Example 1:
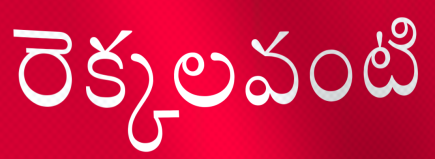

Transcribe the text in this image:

రెక్కలవంటి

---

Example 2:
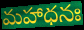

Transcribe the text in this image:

మహాధనః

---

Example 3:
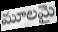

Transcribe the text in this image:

మూలమై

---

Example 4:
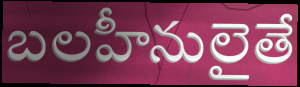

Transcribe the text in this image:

బలహీనులైతే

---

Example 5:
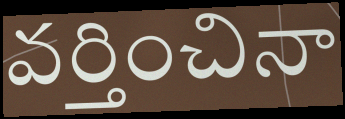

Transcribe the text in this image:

వర్తించినా